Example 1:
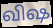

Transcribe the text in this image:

விஷ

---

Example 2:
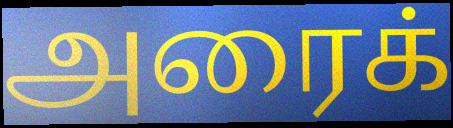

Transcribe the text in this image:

அரைக்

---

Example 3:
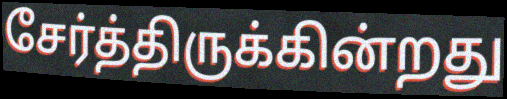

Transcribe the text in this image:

சேர்த்திருக்கின்றது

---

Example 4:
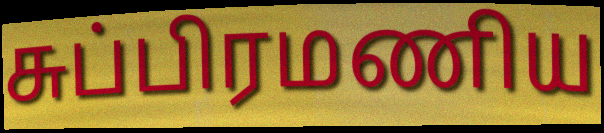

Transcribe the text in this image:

சுப்பிரமணிய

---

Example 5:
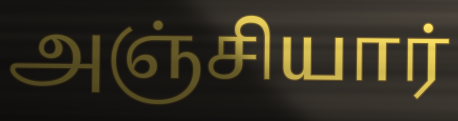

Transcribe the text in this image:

அஞ்சியார்